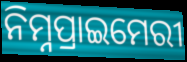
ନିମ୍ନପ୍ରାଇମେରୀ